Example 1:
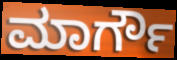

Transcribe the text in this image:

ಮಾರ್ಗೌ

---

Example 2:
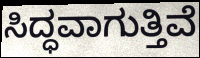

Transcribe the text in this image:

ಸಿದ್ಧವಾಗುತ್ತಿವೆ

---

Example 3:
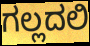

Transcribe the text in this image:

ಗಲ್ಲದಲಿ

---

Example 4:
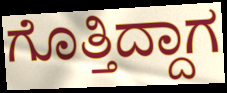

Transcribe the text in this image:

ಗೊತ್ತಿದ್ದಾಗ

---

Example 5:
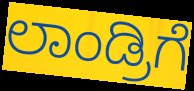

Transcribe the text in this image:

ಲಾಂಡ್ರಿಗೆ